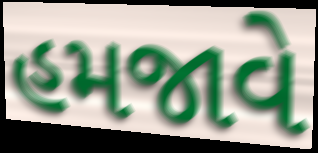
હમજાવે